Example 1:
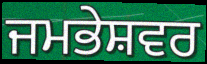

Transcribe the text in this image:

ਜਮਭੇਸ਼ਵਰ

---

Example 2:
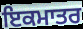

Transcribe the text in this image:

ਇਕਮਾਤਰ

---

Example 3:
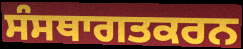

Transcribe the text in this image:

ਸੰਸਥਾਗਤਕਰਨ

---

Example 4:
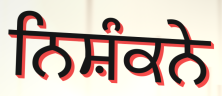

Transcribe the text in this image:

ਨਿਸ਼ੰਕਨੇ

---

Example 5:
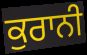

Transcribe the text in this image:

ਕੁਰਾਨੀ